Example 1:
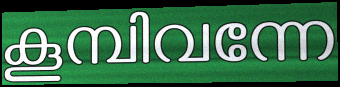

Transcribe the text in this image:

കൂമ്പിവന്നേ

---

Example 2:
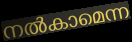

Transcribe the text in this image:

നൽകാമെന്ന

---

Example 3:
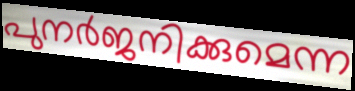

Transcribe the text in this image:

പുനർജനിക്കുമെന്ന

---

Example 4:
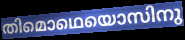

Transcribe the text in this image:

തിമൊഥെയൊസിനു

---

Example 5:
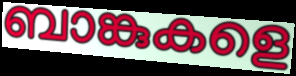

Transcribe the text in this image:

ബാങ്കുകളെ